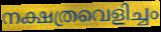
നക്ഷത്രവെളിച്ചം